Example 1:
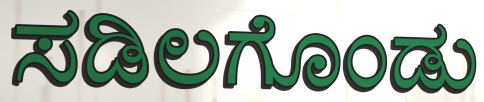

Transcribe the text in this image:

ಸಡಿಲಗೊಂಡು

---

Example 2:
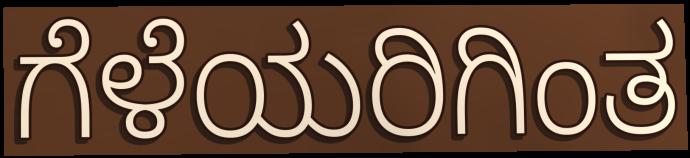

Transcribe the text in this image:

ಗೆಳೆಯರಿಗಿಂತ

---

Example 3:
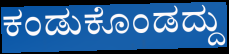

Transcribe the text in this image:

ಕಂಡುಕೊಂಡದ್ದು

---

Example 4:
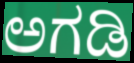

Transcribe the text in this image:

ಅಗಡಿ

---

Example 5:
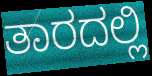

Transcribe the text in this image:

ತಾರದಲ್ಲಿ